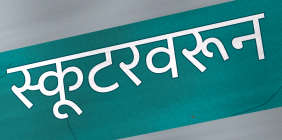
स्कूटरवरून